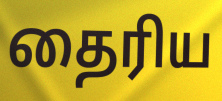
தைரிய